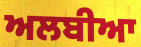
ਅਲਬੀਆ